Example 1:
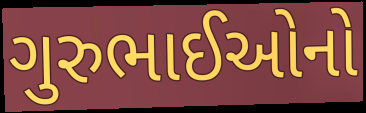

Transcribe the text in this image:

ગુરુભાઈઓનો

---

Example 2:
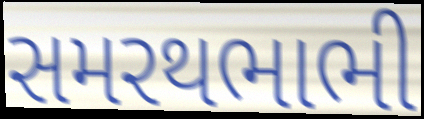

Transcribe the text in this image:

સમરથભાભી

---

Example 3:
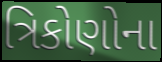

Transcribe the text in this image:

ત્રિકોણોના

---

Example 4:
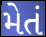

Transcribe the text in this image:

મેતં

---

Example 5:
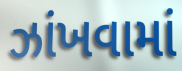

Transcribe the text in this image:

ઝાંખવામાં